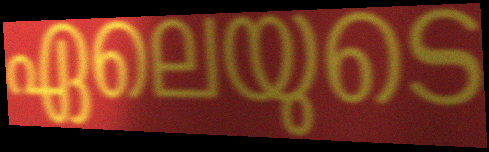
ഏലെയുടെ